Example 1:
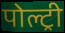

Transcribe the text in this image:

पोल्ट्री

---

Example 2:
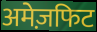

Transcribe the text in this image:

अमेज़फिट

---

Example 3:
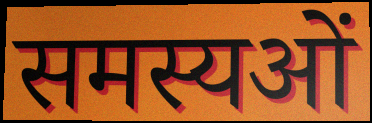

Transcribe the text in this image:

समस्यओं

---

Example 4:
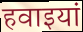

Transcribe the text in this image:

हवाइयां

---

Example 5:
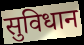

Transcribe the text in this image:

सुविधान